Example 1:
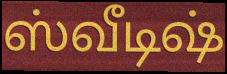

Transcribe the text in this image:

ஸ்வீடிஷ்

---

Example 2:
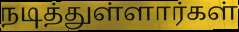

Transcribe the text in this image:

நடித்துள்ளார்கள்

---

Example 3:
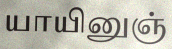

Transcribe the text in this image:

யாயினுஞ்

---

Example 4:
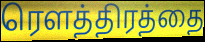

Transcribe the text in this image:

ரௌத்திரத்தை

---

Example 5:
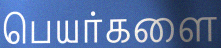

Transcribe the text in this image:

பெயர்களை